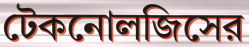
টেকনোলজিসের